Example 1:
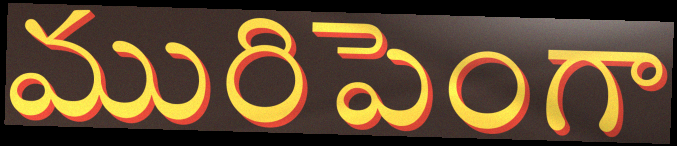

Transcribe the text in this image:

మురిపెంగా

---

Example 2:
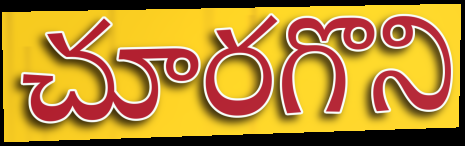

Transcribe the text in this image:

చూరగొని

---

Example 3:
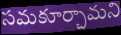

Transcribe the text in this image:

సమకూర్చామని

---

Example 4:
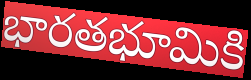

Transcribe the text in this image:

భారతభూమికి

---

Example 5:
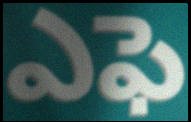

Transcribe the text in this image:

ఎఫె